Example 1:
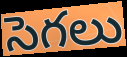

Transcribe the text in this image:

సెగలు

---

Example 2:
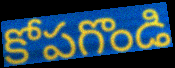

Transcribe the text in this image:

కోపగొండి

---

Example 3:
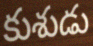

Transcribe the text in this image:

కుశుడు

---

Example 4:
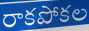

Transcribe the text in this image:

రాకపోకల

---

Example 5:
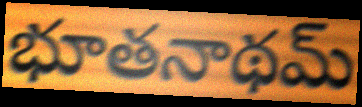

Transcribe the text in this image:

భూతనాథమ్